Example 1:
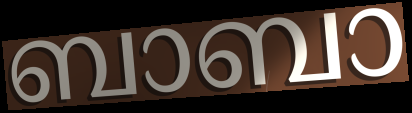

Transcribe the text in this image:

ബാബാ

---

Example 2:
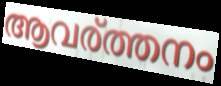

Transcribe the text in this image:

ആവര്ത്തനം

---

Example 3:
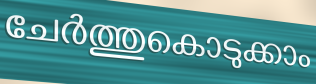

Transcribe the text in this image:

ചേർത്തുകൊടുക്കാം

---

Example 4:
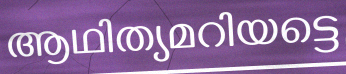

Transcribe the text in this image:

ആഥിത്യമറിയട്ടെ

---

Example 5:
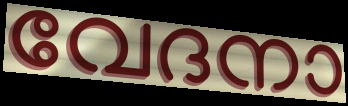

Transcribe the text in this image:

വേദനാ